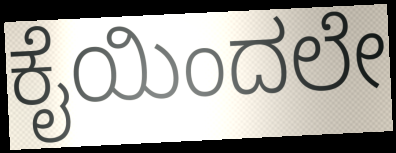
ಕೈಯಿಂದಲೇ